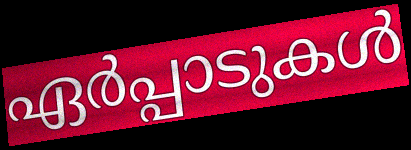
ഏർപ്പാടുകൾ